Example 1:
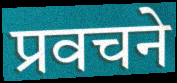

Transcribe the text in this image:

प्रवचने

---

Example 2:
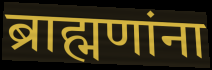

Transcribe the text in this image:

ब्राह्मणांना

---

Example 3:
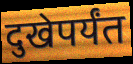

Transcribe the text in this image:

दुखेपर्यंत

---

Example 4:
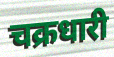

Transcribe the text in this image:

चक्रधारी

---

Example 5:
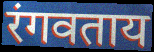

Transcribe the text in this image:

रंगवताय